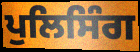
ਪੁਲਿਸਿੰਗ